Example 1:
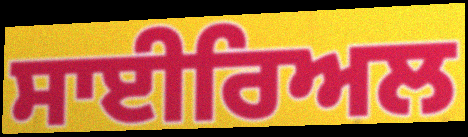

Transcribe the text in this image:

ਸਾਈਰਿਅਲ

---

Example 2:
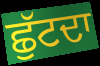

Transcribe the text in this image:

ਛੁੱਟਦਾ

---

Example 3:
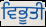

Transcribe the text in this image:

ਵਿਭੂਤੀ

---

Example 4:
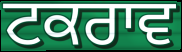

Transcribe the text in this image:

ਟਕਰਾਵ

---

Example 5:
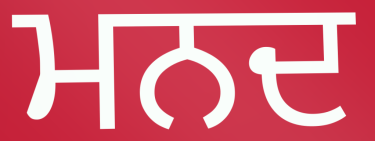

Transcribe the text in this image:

ਮਨਦ